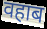
वहाब